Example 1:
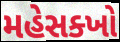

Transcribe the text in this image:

મહેસક્ખો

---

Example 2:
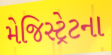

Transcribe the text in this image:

મેજિસ્ટ્રેટના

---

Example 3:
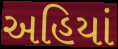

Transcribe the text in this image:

અહિયાં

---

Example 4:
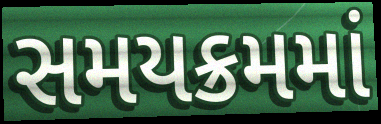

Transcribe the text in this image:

સમયક્રમમાં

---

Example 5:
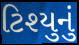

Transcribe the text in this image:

ટિશ્યુનું